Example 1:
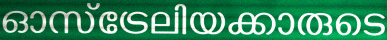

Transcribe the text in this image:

ഓസ്ട്രേലിയക്കാരുടെ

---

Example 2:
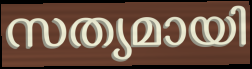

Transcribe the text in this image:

സത്യമായി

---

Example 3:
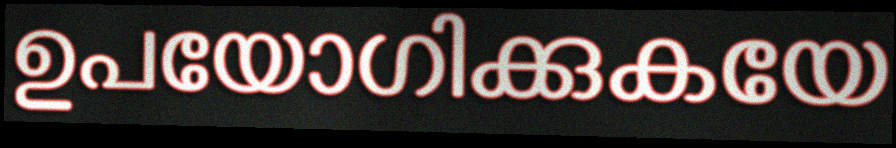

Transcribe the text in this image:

ഉപയോഗിക്കുകയേ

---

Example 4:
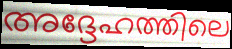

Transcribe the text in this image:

അദ്ദേഹത്തിലെ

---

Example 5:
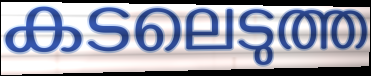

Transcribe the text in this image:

കടലെടുത്ത